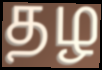
தழ